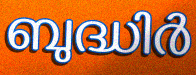
ബുദ്ധിർ